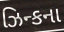
ઝિન્કના